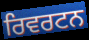
ਰਿਵਰਟਨ